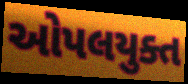
ઓપલયુક્ત